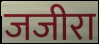
जजीरा